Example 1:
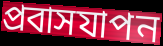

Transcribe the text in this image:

প্রবাসযাপন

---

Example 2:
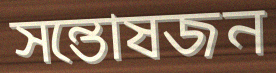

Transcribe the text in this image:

সন্তোষজন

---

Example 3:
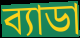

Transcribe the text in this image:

ব্যাডা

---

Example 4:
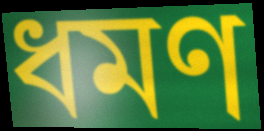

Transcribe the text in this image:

ধমণ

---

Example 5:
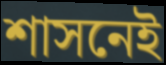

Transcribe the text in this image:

শাসনেই